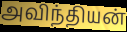
அவிந்தியன்